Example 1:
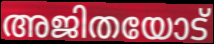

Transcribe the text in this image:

അജിതയോട്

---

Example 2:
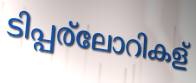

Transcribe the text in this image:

ടിപ്പര്ലോറികള്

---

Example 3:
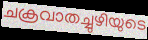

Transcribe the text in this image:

ചക്രവാതച്ചുഴിയുടെ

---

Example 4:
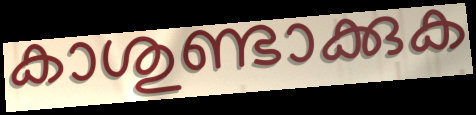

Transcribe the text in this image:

കാശുണ്ടാക്കുക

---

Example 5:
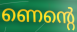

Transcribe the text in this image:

ണെന്റെ